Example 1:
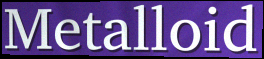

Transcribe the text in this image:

Metalloid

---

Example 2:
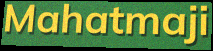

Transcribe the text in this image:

Mahatmaji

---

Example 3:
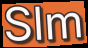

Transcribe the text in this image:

Slm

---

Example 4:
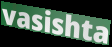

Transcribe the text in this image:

vasishta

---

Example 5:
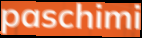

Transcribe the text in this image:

paschimi